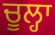
ਚੂਲ੍ਹਾ